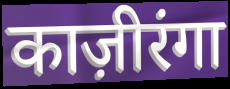
काज़ीरंगा